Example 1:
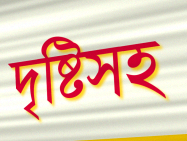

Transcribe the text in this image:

দৃষ্টিসহ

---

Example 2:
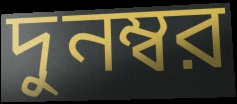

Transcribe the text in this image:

দুনম্বর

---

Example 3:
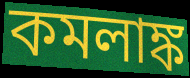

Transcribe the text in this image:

কমলাঙ্ক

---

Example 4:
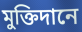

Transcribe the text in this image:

মুক্তিদানে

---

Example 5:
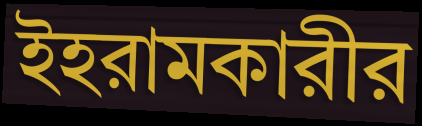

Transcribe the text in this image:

ইহরামকারীর